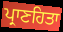
ਪ੍ਰਾਣਹਿਤਾ